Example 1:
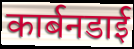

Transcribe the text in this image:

कार्बनडाई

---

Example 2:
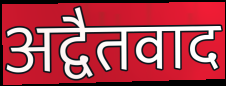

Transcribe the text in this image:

अद्वैतवाद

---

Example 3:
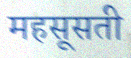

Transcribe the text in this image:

महसूसती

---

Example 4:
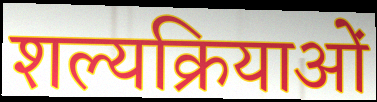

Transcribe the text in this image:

शल्यक्रियाओं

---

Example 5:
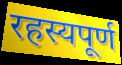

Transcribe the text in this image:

रहस्यपूर्ण